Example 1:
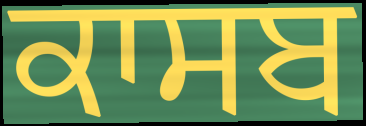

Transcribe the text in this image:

ਕਾਸਬ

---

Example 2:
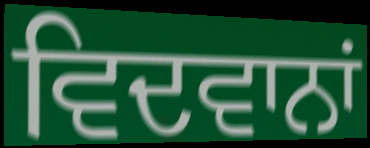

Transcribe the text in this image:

ਵਿਦਵਾਨਾਂ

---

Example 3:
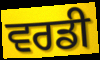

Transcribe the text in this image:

ਵਰਡੀ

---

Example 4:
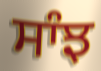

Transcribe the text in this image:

ਸਾੰਝ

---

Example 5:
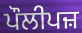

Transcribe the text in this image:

ਪੌਲੀਪਜ਼